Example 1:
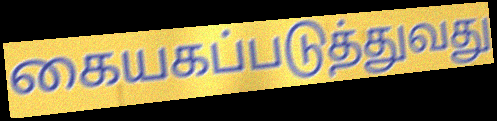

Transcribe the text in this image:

கையகப்படுத்துவது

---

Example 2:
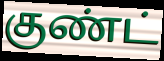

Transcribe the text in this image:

குண்ட்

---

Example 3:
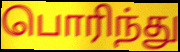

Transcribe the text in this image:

பொரிந்து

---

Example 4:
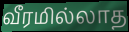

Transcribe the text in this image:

வீரமில்லாத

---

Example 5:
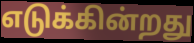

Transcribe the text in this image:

எடுக்கின்றது